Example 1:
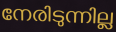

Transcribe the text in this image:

നേരിടുന്നില്ല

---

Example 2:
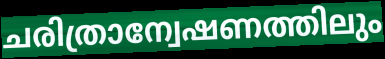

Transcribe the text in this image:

ചരിത്രാന്വേഷണത്തിലും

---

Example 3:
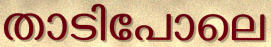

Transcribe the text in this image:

താടിപോലെ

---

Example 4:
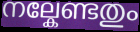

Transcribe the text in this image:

നല്കേണ്ടതും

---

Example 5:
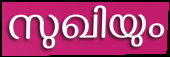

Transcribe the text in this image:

സുഖിയും